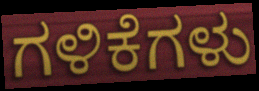
ಗಳಿಕೆಗಳು